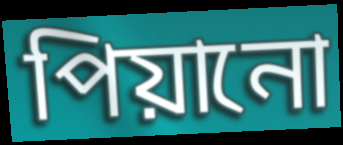
পিয়ানো